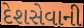
દેશસેવાની